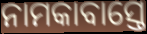
ନାମକାବାସ୍ତେ